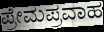
ಪ್ರೇಮಪ್ರವಾಹ